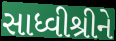
સાધ્વીશ્રીને